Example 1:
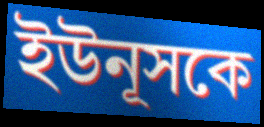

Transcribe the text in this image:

ইউনূসকে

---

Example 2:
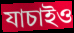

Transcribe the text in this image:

যাচাইও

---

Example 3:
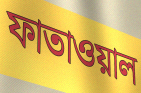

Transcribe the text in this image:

ফাতাওয়াল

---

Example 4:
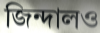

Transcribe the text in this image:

জিন্দালও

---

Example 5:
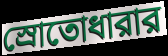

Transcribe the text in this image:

স্রোতোধারার